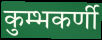
कुम्भकर्णी